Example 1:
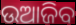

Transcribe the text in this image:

ଉଆଜିବ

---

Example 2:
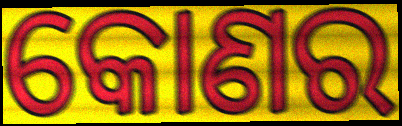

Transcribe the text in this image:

କୋଣର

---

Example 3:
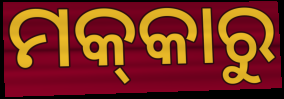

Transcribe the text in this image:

ମକ୍‌କାରୁ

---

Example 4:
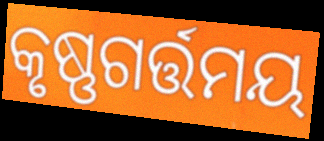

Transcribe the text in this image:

କୃଷ୍ଣଗର୍ତ୍ତମୟ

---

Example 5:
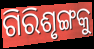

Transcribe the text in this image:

ଗିରିଶୃଙ୍ଗକୁ